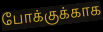
போக்குக்காக